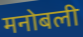
मनोबली